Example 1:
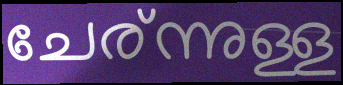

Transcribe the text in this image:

ചേര്ന്നുള്ള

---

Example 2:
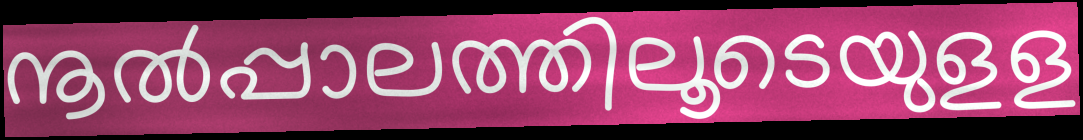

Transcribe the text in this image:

നൂൽപ്പാലത്തിലൂടെയുളള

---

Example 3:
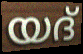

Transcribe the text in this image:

യദ്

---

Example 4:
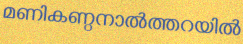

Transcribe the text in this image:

മണികണ്ഠനാൽത്തറയിൽ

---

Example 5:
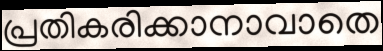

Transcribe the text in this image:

പ്രതികരിക്കാനാവാതെ